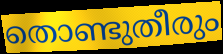
തൊണ്ടുതീരും